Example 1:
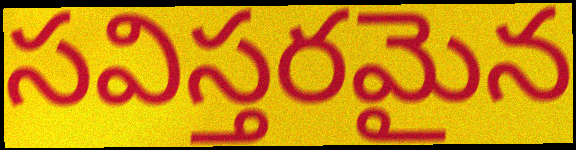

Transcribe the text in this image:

సవిస్తరమైన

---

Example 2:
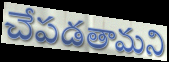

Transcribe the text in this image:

చేపడతామని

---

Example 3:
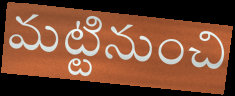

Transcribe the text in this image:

మట్టినుంచి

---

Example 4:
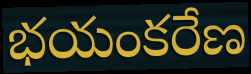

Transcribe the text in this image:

భయంకరేణ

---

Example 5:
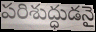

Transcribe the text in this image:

పరిశుద్ధుడనై